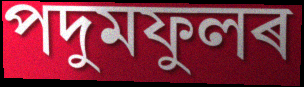
পদুমফুলৰ